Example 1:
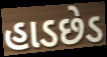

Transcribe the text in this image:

હાડછેડ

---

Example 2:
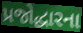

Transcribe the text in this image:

પ્રજોદ્ધારના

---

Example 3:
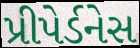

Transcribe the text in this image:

પ્રીપેર્ડનેસ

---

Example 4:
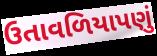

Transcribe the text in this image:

ઉતાવળિયાપણું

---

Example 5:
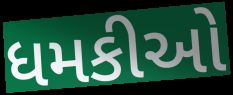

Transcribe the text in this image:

ધમકીઓ